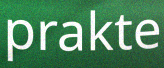
prakte